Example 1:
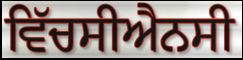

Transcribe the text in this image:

ਵਿੱਚਸੀਐਨਸੀ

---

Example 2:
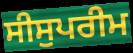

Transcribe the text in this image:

ਸੀਸੁਪਰੀਮ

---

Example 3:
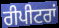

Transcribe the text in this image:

ਰੀਪੀਟਰਾਂ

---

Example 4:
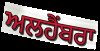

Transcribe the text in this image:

ਅਲਹੈਂਬਰਾ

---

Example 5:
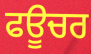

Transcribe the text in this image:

ਫਊਚਰ